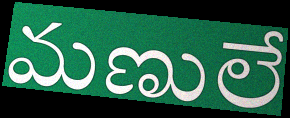
మణులే